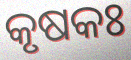
କୃଷକଃ